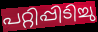
പറ്റിപ്പിടിച്ചു